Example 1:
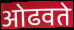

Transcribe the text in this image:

ओढवते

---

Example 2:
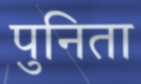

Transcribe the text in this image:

पुनिता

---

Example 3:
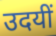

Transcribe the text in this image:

उदयीं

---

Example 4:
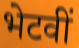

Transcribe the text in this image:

भेटवीं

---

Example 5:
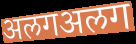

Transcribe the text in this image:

अलगअलग